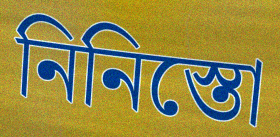
নিনিস্তো